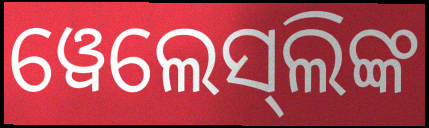
ୱେଲେସ୍‌ଲିଙ୍କ